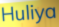
Huliya